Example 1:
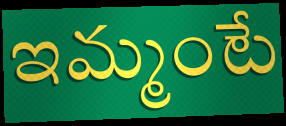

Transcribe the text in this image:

ఇమ్మంటే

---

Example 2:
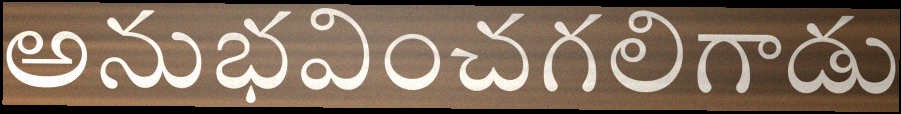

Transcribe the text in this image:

అనుభవించగలిగాడు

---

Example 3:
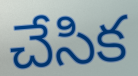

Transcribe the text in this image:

చేసిక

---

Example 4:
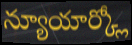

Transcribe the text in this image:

న్యూయార్క్లో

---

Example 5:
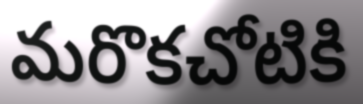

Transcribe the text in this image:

మరొకచోటికి